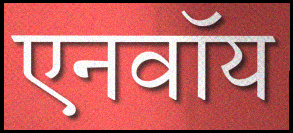
एनवॉय